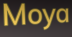
Moya